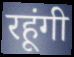
रहूंगी